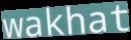
wakhat